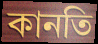
কানতি